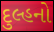
દુલ્હનો